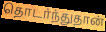
தொடர்ந்துதான்